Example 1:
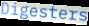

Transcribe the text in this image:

Digesters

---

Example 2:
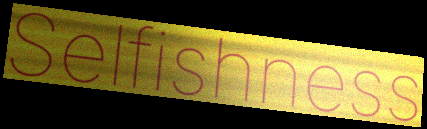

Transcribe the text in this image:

Selfishness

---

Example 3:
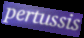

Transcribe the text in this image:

pertussis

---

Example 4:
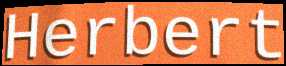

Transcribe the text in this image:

Herbert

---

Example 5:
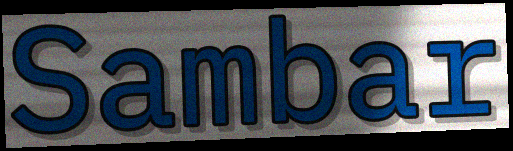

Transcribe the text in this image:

Sambar